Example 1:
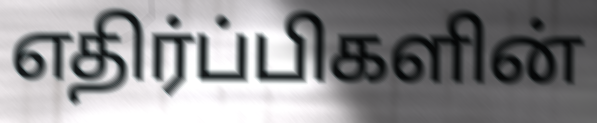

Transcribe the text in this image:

எதிர்ப்பிகளின்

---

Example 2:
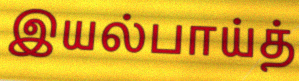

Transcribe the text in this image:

இயல்பாய்த்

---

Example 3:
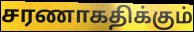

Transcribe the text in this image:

சரணாகதிக்கும்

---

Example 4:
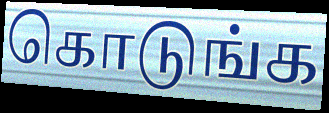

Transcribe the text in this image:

கொடுங்க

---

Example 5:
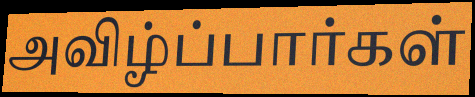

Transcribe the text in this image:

அவிழ்ப்பார்கள்